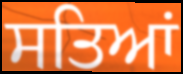
ਸਤਿਆਂ